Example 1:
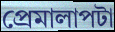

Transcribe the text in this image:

প্রেমালাপটা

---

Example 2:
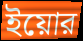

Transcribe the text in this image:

ইয়োর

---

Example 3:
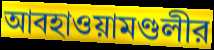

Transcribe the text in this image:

আবহাওয়ামণ্ডলীর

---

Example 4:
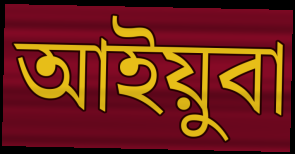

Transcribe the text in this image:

আইয়ুবা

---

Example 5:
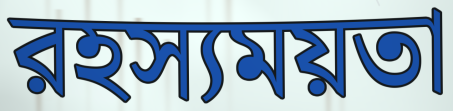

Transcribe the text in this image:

রহস্যময়তা